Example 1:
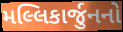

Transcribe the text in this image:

મલ્લિકાર્જુનનો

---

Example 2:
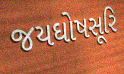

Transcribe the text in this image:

જયઘોષસૂરિ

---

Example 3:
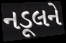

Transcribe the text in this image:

નડૂલને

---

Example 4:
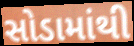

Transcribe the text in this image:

સોડામાંથી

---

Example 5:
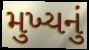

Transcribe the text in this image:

મુખ્યનું